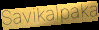
Savikalpaka